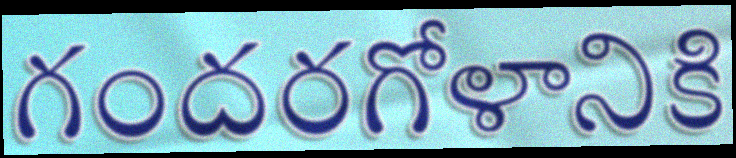
గందరగోళానికి